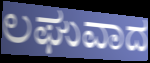
ಲಘುವಾದ